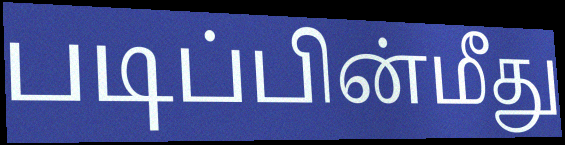
படிப்பின்மீது